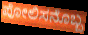
ಪೋಲಿಸನೊಬ್ಬ